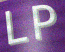
LP